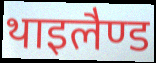
थाइलैण्ड